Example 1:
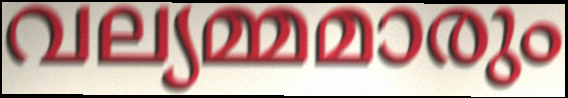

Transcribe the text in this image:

വല്യമ്മമാരും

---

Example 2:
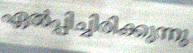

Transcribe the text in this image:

ഏൽപ്പിച്ചിരിക്കുന്നു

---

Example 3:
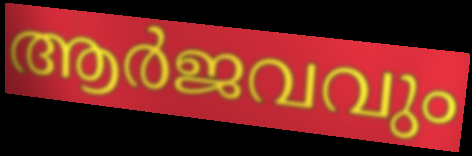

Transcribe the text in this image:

ആർജവവും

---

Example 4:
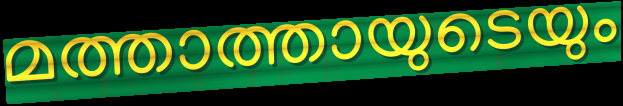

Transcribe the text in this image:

മത്താത്തായുടെയും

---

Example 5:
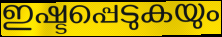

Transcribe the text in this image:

ഇഷ്ടപ്പെടുകയും